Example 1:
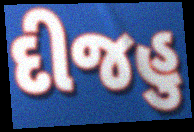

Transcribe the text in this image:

દીજહુ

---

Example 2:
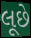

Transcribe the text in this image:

લૂછે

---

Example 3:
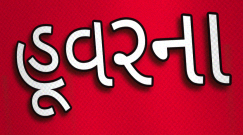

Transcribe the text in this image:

હૂવરના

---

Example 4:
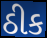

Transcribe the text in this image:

ઠીક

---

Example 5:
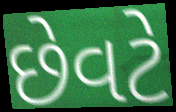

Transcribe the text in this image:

છેવટે